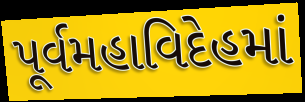
પૂર્વમહાવિદેહમાં